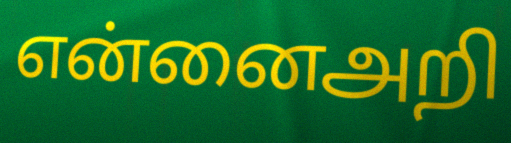
என்னைஅறி